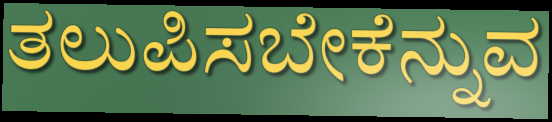
ತಲುಪಿಸಬೇಕೆನ್ನುವ